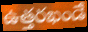
ఉత్తరఖండే